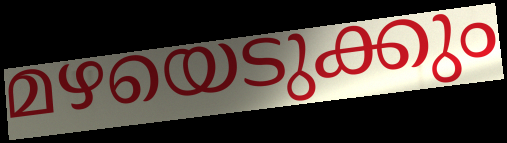
മഴയെടുക്കും